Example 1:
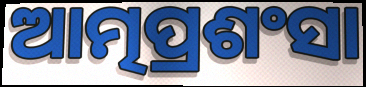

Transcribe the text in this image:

ଆତ୍ମପ୍ରଶଂସା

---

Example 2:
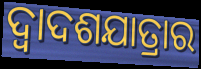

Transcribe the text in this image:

ଦ୍ୱାଦଶଯାତ୍ରାର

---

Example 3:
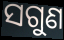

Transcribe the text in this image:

ସଗୁଣ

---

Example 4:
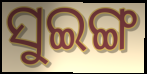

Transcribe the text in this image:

ସୁଇଙ୍ଗ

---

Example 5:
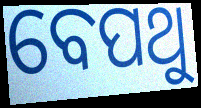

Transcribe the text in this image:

ବେପଥୁ